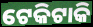
ଟେକିଟାକି